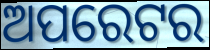
ଅପରେଟର